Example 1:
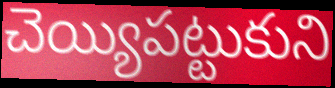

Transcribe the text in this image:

చెయ్యిపట్టుకుని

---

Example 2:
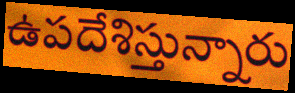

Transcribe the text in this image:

ఉపదేశిస్తున్నారు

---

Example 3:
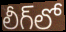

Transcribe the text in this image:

లీగ్‌లో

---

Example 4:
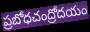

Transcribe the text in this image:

ప్రబోధచంద్రోదయం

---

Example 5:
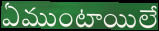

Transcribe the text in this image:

ఏముంటాయిలే